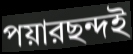
পয়ারছন্দই